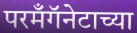
परमँगॅनेटाच्या